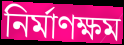
নির্মাণক্ষম